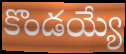
కొండయ్యే